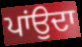
ਪਾਂਉਦਾ